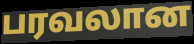
பரவலான